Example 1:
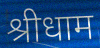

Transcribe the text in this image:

श्रीधाम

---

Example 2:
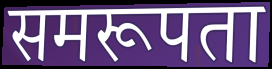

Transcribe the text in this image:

समरूपता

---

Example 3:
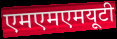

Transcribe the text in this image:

एमएमएमयूटी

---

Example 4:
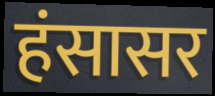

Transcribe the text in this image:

हंसासर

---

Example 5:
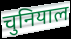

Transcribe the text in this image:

चुनियाल